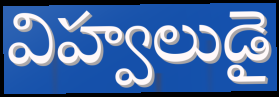
విహ్వలుడై